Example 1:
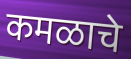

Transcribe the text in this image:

कमळाचे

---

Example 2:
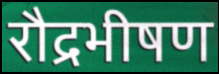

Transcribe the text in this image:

रौद्रभीषण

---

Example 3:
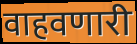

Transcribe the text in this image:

वाहवणारी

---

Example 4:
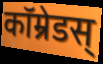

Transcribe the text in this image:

कॉम्रेडस्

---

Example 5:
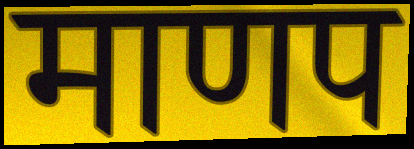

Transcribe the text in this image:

माणप